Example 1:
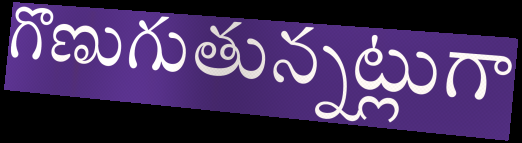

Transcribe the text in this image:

గొణుగుతున్నట్లుగా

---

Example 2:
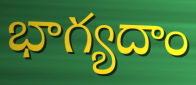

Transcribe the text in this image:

భాగ్యదాం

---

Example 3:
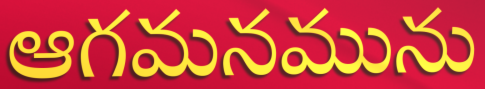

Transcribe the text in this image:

ఆగమనమును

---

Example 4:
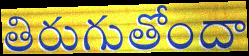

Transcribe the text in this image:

తిరుగుతోందా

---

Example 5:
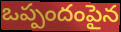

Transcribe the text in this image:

ఒప్పందంపైన